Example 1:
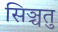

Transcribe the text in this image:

सिञ्चतु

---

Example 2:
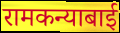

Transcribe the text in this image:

रामकन्याबाई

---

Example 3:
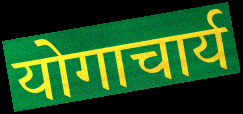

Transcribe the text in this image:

योगाचार्य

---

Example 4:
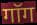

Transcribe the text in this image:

गॉग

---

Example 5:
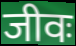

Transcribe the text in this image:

जीवः